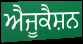
ਐਜੂਕੈਸ਼ਨ